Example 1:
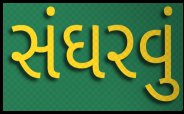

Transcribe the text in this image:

સંઘરવું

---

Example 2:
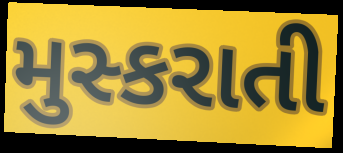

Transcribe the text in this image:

મુસ્કરાતી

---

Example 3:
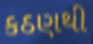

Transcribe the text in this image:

કઠણથી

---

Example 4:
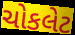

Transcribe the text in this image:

ચોકલેટ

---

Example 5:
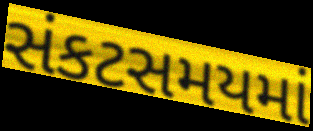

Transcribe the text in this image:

સંકટસમયમાં